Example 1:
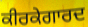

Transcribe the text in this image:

ਕੀਰਕੇਗਾਰਦ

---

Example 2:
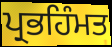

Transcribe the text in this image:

ਪ੍ਰਭਹਿੰਮਤ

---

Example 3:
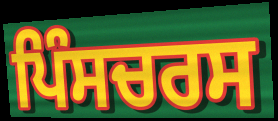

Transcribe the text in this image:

ਪਿੰਸਚਰਸ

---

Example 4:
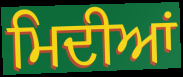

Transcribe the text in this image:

ਮਿਦੀਆਂ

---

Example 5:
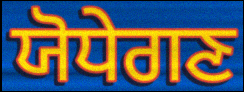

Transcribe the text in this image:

ਯੋਧੇਗਣ